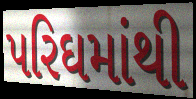
પરિઘમાંથી